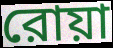
রোয়া